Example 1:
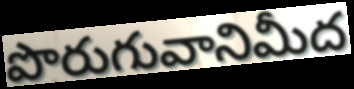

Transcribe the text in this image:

పొరుగువానిమీద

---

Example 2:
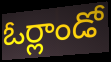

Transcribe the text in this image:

ఓర్లాండో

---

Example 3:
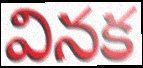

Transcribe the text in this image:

వినక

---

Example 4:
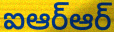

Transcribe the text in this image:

ఐఆర్ఆర్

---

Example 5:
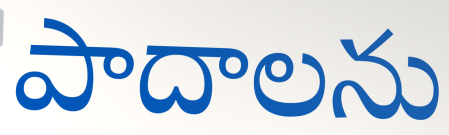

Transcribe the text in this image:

పాదాలను